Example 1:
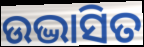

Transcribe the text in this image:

ଉଦ୍ଭାସିତ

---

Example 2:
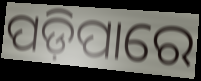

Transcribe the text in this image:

ପଡ଼ିପାରେ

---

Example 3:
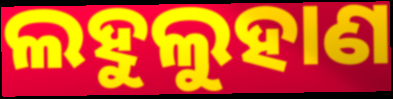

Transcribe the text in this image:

ଲହୁଲୁହାଣ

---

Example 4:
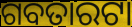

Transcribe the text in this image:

ଗବତାରଟା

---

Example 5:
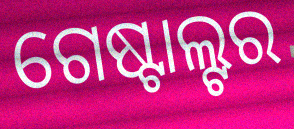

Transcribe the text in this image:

ଗେଷ୍ଟାଲ୍ଟର